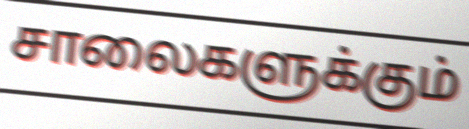
சாலைகளுக்கும்